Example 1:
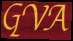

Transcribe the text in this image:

GVA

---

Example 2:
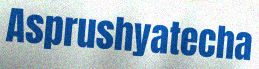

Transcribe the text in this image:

Asprushyatecha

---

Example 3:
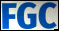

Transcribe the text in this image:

FGC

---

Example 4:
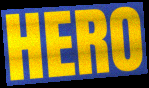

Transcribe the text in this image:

HERO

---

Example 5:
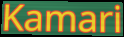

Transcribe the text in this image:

Kamari